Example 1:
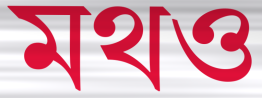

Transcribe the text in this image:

মথও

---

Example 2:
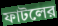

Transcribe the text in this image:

ফাটলের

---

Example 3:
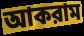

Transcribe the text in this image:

আকরাম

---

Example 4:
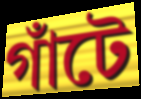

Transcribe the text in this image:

গাঁটে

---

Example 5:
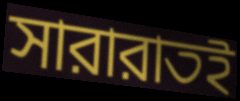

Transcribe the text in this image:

সারারাতই